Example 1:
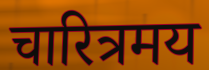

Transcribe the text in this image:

चारित्रमय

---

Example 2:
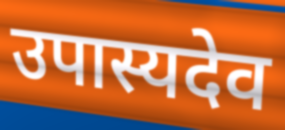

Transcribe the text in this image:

उपास्यदेव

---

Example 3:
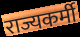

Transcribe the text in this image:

राज्यकर्मी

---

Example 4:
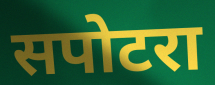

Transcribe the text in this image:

सपोटरा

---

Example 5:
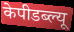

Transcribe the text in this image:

केपीडब्ल्यू